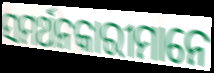
ସମର୍ଥନକାରୀମାନେ